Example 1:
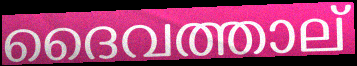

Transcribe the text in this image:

ദൈവത്താല്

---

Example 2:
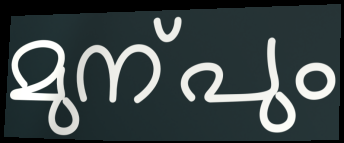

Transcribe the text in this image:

മുന്പും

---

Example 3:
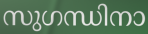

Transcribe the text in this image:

സുഗന്ധിനാ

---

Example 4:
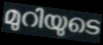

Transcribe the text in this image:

മുറിയുടെ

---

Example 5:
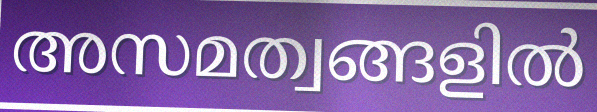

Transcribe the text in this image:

അസമത്വങ്ങളിൽ